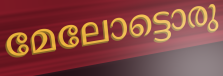
മേലോട്ടൊരു